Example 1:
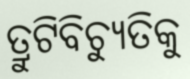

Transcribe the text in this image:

ତ୍ରୁଟିବିଚ୍ୟୁତିକୁ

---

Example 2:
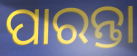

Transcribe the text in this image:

ପାରନ୍ତା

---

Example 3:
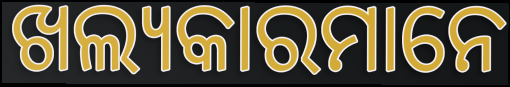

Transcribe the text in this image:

ଖଲ୍ୟକାରମାନେ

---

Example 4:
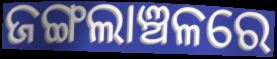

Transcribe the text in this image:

ଜଙ୍ଗଲାଞ୍ଚଳରେ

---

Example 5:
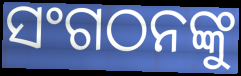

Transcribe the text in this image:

ସଂଗଠନଙ୍କୁ